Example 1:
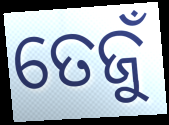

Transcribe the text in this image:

ତେଜୁଁ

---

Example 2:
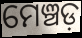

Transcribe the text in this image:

ମେଞ୍ଚଡ଼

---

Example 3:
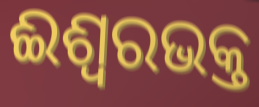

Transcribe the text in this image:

ଈଶ୍ୱରଭକ୍ତ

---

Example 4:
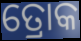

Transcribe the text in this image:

ତ୍ରୋକ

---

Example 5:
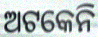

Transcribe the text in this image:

ଅଟକେନି